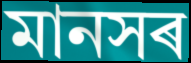
মানসৰ